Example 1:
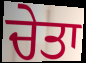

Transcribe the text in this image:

ਚੇਤਾ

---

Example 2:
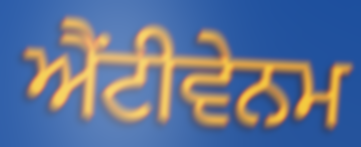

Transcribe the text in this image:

ਐਂਟੀਵੇਨਮ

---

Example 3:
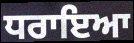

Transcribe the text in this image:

ਧਰਾਇਆ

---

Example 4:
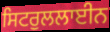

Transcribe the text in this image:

ਸਿਟਰੁਲਲਾਈਨ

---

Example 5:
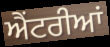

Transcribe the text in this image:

ਐਂਟਰੀਆਂ